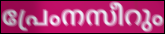
പ്രേംനസീറും